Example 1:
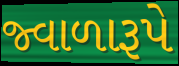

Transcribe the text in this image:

જ્વાળારૂપે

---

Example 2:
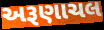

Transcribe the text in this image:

અરૂણાચલ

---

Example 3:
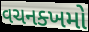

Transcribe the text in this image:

વચનક્ખમો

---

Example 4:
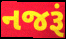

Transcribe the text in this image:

નજરૂં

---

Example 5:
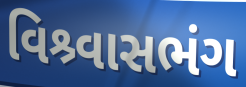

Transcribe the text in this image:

વિશ્ર્વાસભંગ